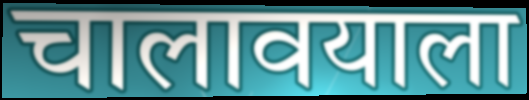
चालावयाला